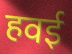
हवई